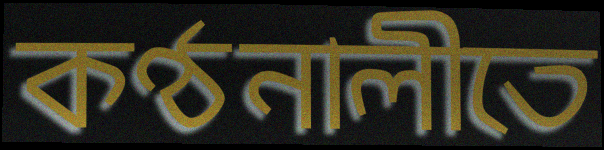
কণ্ঠনালীতে